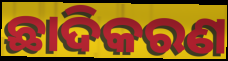
ଛାଦିକରଣ